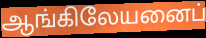
ஆங்கிலேயனைப்